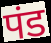
पंड